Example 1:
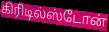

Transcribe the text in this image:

கிரிடில்ஸ்டோன்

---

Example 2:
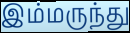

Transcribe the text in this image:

இம்மருந்து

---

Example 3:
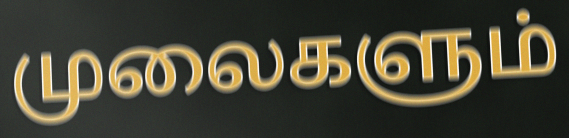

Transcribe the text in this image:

முலைகளும்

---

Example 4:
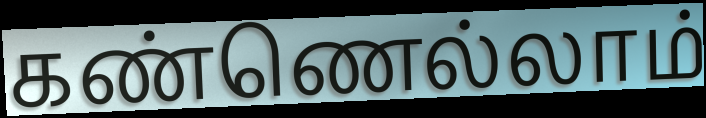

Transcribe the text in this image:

கண்ணெல்லாம்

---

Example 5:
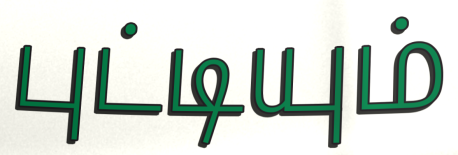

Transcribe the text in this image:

புட்டியும்